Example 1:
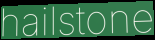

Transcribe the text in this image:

hailstone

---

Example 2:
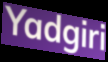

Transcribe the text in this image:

Yadgiri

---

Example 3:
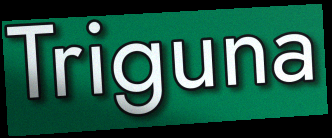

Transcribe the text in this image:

Triguna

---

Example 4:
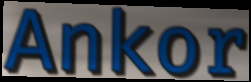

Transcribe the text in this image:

Ankor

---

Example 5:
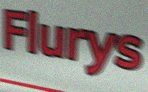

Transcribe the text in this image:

Flurys